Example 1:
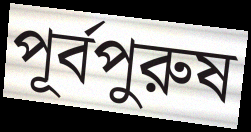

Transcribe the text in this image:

পূর্বপুরুষ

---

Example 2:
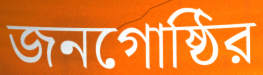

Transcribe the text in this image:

জনগোষ্ঠির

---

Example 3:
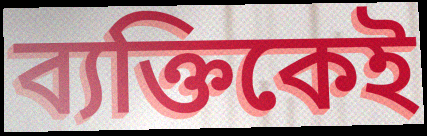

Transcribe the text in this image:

ব্যক্তিকেই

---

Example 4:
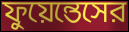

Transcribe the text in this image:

ফুয়েন্তেসের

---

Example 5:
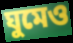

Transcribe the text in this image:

ঘুমেও